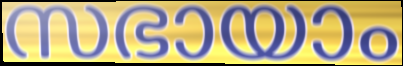
സഭായാം